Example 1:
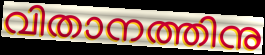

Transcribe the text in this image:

വിതാനത്തിനു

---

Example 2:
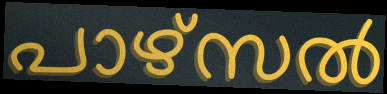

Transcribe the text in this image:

പാഴ്സൽ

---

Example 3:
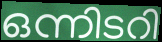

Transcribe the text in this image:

ഒന്നിടറി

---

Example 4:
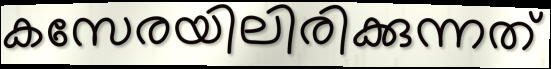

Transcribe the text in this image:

കസേരയിലിരിക്കുന്നത്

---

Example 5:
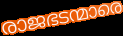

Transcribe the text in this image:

രാജഭടന്മാരെ